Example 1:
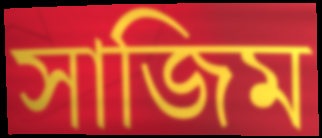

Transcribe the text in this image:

সাজিম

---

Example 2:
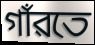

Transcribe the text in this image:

গাঁৱতে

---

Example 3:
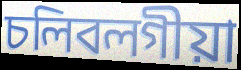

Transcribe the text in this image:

চলিবলগীয়া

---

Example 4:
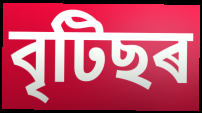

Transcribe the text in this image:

বৃটিছৰ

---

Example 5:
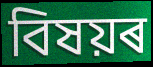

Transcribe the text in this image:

বিষয়ৰ